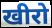
खीरो